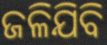
ଜଳିଯିବି